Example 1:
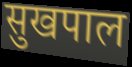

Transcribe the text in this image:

सुखपाल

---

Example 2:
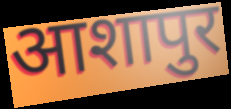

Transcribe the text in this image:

आशापुर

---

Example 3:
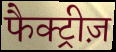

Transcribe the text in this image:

फैक्ट्रीज़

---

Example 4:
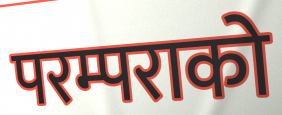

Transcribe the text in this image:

परम्पराको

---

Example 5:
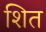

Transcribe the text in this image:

शित